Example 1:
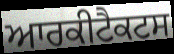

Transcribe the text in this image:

ਆਰਕੀਟੈਕਟਸ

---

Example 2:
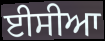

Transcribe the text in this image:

ਈਸੀਆ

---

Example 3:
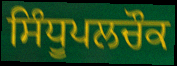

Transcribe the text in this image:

ਸਿੰਧੂਪਲਚੌਕ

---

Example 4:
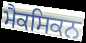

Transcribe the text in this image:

ਮੈਕਸਿਕਨ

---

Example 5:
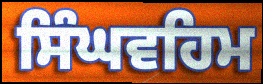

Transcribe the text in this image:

ਸਿੰਘਵਹਿਮ